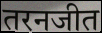
तरनजीत